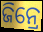
ଜିନ୍ରେ